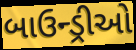
બાઉન્ડ્રીઓ